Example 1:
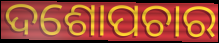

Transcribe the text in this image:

ଦଶୋପଚାର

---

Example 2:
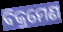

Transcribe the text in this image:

ବିକ୍ରମେଣ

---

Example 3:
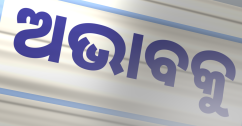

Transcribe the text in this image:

ଅଭାବକୁ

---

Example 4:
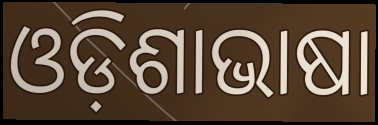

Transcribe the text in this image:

ଓଡ଼ିଶାଭାଷା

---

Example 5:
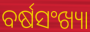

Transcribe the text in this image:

ବର୍ଷସଂଖ୍ୟା